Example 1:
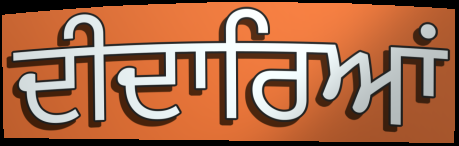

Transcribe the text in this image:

ਦੀਦਾਰਿਆਂ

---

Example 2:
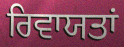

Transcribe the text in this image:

ਰਿਵਾਯਤਾਂ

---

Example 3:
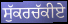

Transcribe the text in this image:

ਸੁੱਕਰਚੱਕੀਏ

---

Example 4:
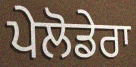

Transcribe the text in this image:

ਪੇਲੋਡੇਰਾ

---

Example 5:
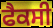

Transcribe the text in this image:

ਫੈਕਸੀ